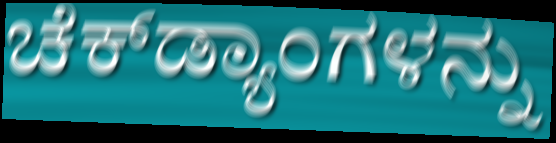
ಚೆಕ್‌ಡ್ಯಾಂಗಳನ್ನು